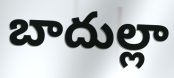
బాదుల్లా